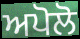
ਅਪੋਲੋ